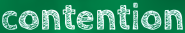
contention